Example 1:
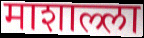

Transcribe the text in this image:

माशाल्ला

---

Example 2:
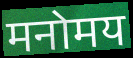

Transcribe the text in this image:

मनोमय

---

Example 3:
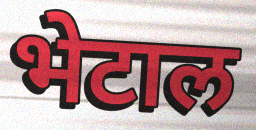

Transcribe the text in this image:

भेटाल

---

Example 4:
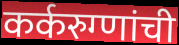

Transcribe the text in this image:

कर्करुग्णांची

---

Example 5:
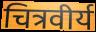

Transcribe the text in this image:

चित्रवीर्य